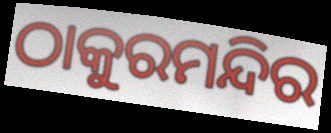
ଠାକୁରମନ୍ଦିର